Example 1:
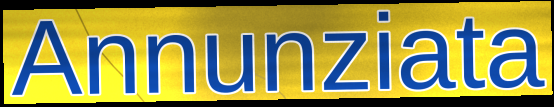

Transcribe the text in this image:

Annunziata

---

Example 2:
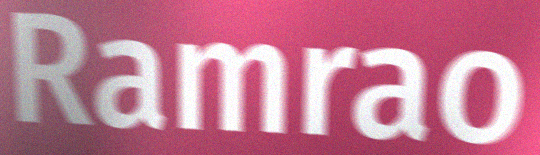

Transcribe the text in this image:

Ramrao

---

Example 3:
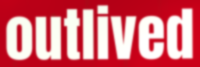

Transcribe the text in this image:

outlived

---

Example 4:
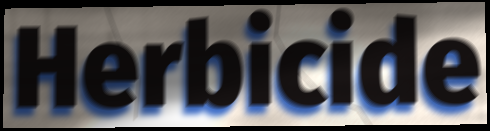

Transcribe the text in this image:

Herbicide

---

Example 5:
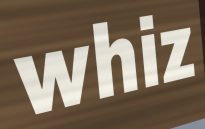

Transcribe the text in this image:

whiz